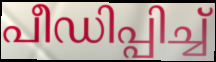
പീഡിപ്പിച്ച്